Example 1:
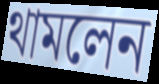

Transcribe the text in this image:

থামলেন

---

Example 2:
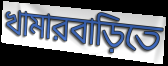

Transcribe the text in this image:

খামারবাড়িতে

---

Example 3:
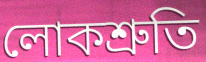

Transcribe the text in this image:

লোকশ্রুতি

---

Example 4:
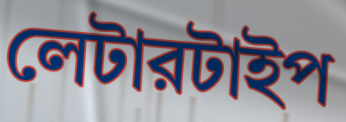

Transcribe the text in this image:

লেটারটাইপ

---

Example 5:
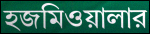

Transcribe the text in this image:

হজমিওয়ালার